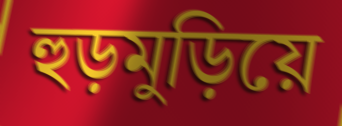
হুড়মুড়িয়ে